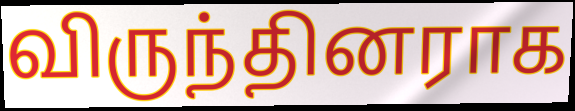
விருந்தினராக